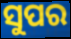
ସୁପର